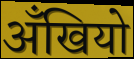
अँखियो